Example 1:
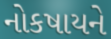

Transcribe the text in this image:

નોકષાયને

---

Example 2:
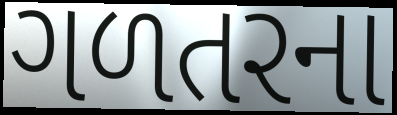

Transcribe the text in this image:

ગળતરના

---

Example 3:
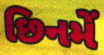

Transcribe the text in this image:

છિનમેં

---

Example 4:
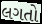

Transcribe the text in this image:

લગતો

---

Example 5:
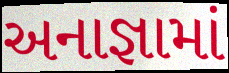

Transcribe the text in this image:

અનાજ્ઞામાં